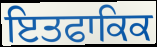
ਇਤਫਾਕਿਕ